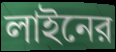
লাইনের